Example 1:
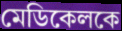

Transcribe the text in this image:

মেডিকেলকে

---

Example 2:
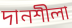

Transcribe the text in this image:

দানশীলা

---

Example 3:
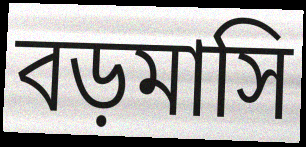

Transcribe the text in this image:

বড়মাসি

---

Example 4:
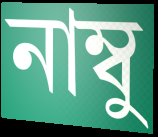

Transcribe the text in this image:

নাম্বু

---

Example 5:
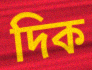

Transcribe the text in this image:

দিক